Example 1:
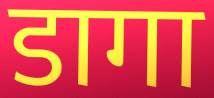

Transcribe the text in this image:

डागा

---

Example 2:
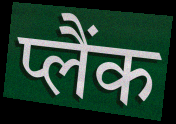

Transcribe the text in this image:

प्लैंक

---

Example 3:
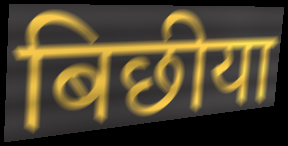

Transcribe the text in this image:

बिछीया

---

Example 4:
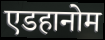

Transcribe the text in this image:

एडहानोम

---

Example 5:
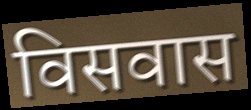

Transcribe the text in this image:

विसवास